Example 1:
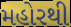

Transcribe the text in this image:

મહોરથી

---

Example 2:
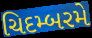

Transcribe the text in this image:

ચિદમ્બરમે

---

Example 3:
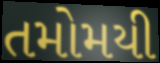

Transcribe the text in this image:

તમોમયી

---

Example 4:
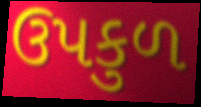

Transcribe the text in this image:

ઉપકુળ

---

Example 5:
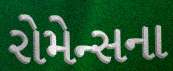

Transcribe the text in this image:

રોમેન્સના